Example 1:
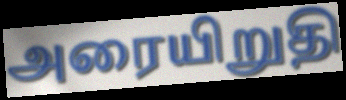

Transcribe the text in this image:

அரையிறுதி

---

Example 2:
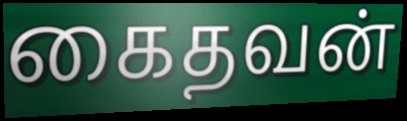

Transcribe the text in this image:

கைதவன்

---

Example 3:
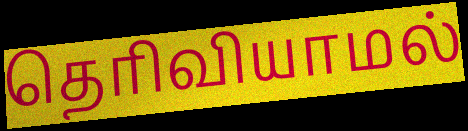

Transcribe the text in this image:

தெரிவியாமல்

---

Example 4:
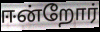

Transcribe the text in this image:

ஈன்றோர்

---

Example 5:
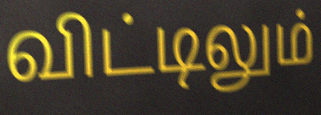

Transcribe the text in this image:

விட்டிலும்